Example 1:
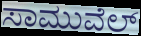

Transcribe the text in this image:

ಸಾಮುವೆಲ್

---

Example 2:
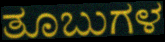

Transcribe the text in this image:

ತೂಬುಗಳ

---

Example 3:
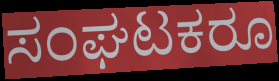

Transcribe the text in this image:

ಸಂಘಟಕರೂ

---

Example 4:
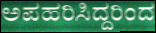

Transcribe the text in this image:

ಅಪಹರಿಸಿದ್ದರಿಂದ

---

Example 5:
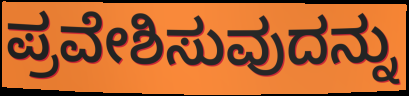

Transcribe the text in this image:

ಪ್ರವೇಶಿಸುವುದನ್ನು